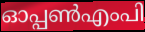
ഓപ്പൺഎംപി